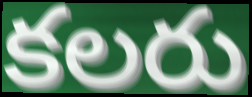
కలరు